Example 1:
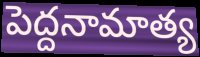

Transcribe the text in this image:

పెద్దనామాత్య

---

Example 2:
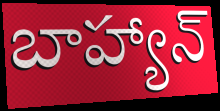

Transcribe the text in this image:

బాహ్యాన్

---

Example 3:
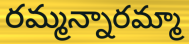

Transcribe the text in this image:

రమ్మన్నారమ్మా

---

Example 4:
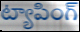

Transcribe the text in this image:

ట్యాపింగ్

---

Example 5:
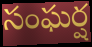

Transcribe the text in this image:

సంఘర్ష